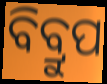
ବିବ୍ରୁପ